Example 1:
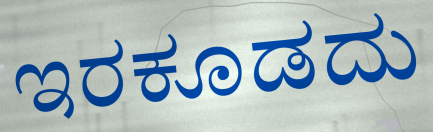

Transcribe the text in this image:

ಇರಕೂಡದು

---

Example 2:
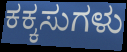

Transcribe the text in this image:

ಕಕ್ಕಸುಗಳು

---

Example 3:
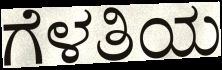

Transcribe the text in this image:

ಗೆಳತಿಯ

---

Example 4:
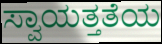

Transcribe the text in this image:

ಸ್ವಾಯತ್ತತೆಯ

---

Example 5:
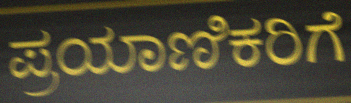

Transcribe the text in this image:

ಪ್ರಯಾಣಿಕರಿಗೆ